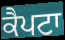
ਕੈਪਟਾ